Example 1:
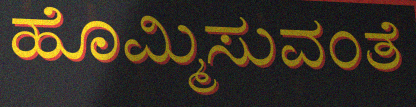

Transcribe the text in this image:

ಹೊಮ್ಮಿಸುವಂತೆ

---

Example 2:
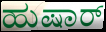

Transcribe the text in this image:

ಹುಷಾರ್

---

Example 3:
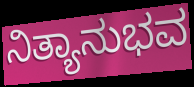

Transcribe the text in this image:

ನಿತ್ಯಾನುಭವ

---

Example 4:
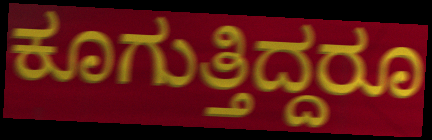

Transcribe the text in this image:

ಕೂಗುತ್ತಿದ್ದರೂ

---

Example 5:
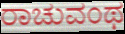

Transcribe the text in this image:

ರಾಚುವಂಥ